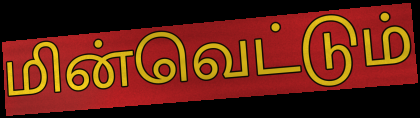
மின்வெட்டும்